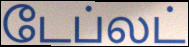
டேப்லட்